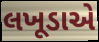
લખૂડાએ